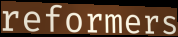
reformers